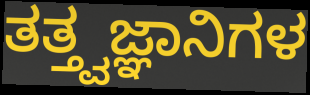
ತತ್ತ್ವಜ್ಞಾನಿಗಳ